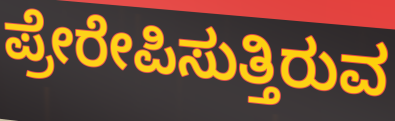
ಪ್ರೇರೇಪಿಸುತ್ತಿರುವ